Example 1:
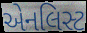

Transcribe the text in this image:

એનલિસ્ટ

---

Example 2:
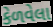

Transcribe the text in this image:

કેળવેલા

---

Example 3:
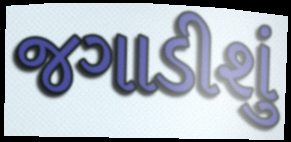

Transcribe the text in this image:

જગાડીશું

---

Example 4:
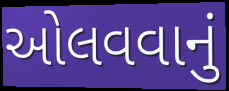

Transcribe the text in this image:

ઓલવવાનું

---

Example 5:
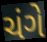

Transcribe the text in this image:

ચંગે